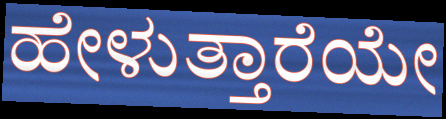
ಹೇಳುತ್ತಾರೆಯೇ